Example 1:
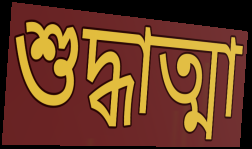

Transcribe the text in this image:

শুদ্ধাত্মা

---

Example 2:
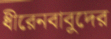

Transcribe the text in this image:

ধীরেনবাবুদের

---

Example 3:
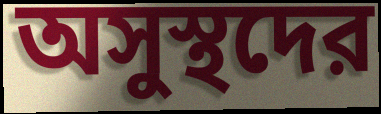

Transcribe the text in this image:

অসুস্থদের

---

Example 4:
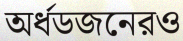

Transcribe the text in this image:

অর্ধডজনেরও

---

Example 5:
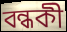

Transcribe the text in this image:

বন্ধকী